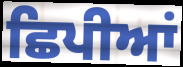
ਛਿਪੀਆਂ